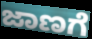
ಜಾಣಗೆ